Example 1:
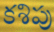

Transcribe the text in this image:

కశిపు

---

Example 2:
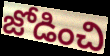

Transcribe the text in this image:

జోడించి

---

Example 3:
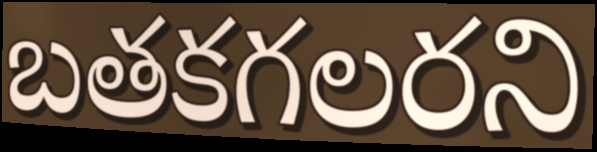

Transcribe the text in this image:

బతకగలరని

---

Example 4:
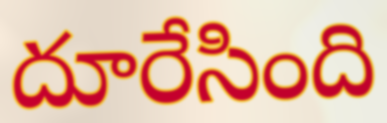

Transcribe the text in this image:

దూరేసింది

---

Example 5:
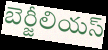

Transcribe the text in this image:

బెర్జీలియస్